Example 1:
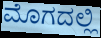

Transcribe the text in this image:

ಮೊಗದಲ್ಲಿ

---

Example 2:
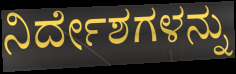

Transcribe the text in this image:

ನಿರ್ದೇಶಗಳನ್ನು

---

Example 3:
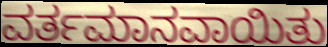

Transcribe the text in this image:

ವರ್ತಮಾನವಾಯಿತು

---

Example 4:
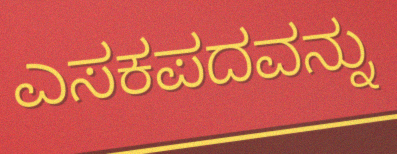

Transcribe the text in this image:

ಎಸಕಪದವನ್ನು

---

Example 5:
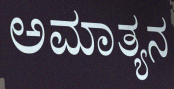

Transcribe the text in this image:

ಅಮಾತ್ಯನ